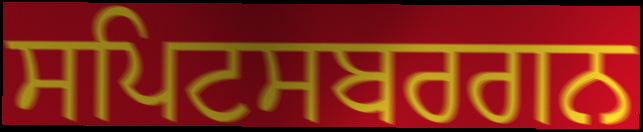
ਸਪਿਟਸਬਰਗਨ